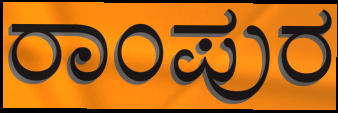
ರಾಂಪುರ